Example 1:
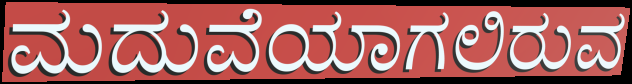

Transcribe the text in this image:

ಮದುವೆಯಾಗಲಿರುವ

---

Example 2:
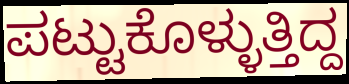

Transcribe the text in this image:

ಪಟ್ಟುಕೊಳ್ಳುತ್ತಿದ್ದ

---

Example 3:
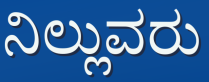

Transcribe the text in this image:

ನಿಲ್ಲುವರು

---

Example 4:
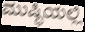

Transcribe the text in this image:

ಮುಷ್ಟಿಯಲ್ಲಿ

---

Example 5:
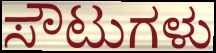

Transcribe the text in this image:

ಸೌಟುಗಳು